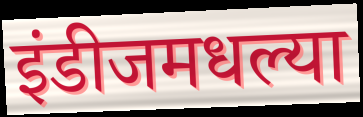
इंडीजमधल्या